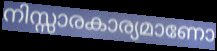
നിസ്സാരകാര്യമാണോ